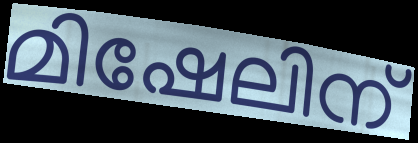
മിഷേലിന്